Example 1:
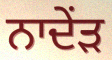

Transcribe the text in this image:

ਨਾਦੇਂੜ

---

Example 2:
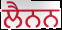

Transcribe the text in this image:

ਲੈਨਨ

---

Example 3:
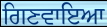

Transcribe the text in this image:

ਗਿਣਵਾਇਆ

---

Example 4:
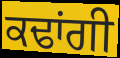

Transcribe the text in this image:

ਕਢਾਂਗੀ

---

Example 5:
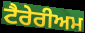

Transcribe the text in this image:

ਟੈਰੇਰੀਅਮ